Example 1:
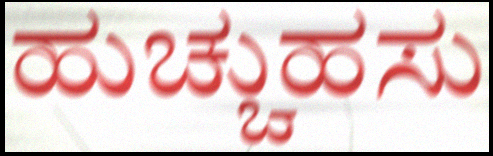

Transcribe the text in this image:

ಹುಚ್ಚುಹಸು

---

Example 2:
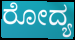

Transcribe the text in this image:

ರೋದ್ಯ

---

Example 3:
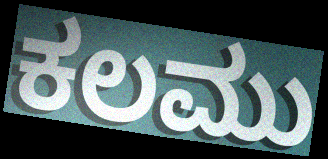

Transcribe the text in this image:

ಕಲಮು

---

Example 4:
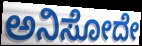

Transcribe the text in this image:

ಅನಿಸೋದೇ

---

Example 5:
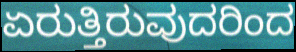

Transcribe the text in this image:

ಏರುತ್ತಿರುವುದರಿಂದ